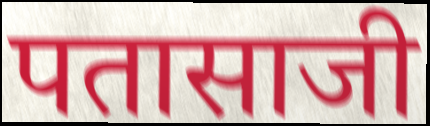
पतासाजी